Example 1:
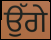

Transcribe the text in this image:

ਉੱਗੇ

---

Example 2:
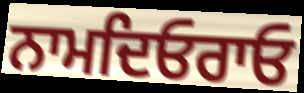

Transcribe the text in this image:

ਨਾਮਦਿਓਰਾਓ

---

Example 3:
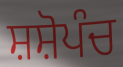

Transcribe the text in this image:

ਸ਼ਸ਼ੋਪੰਚ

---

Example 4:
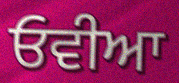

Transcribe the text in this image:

ਓਵੀਆ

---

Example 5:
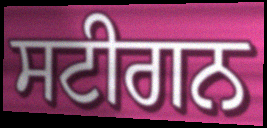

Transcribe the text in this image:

ਸਟੀਗਨ